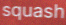
squash